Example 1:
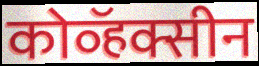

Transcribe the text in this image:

कोव्हॅक्सीन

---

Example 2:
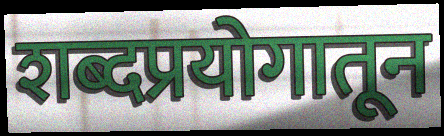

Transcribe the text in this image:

शब्दप्रयोगातून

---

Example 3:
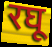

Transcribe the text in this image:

रघू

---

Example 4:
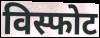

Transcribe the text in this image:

विस्फोट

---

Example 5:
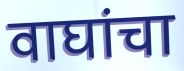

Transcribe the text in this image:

वाघांचा